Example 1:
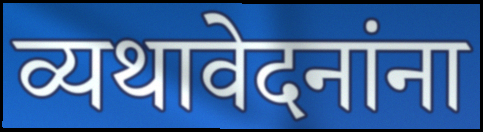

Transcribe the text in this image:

व्यथावेदनांना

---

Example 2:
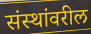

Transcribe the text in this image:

संस्थांवरील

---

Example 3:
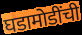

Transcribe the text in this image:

घडामोडींची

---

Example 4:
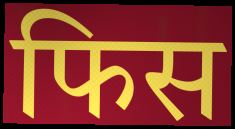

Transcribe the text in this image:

फिस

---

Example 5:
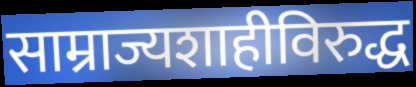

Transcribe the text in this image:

साम्राज्यशाहीविरुद्ध